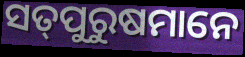
ସତ୍‌ପୁରୁଷମାନେ